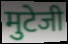
मुटेजी